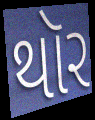
થૉર